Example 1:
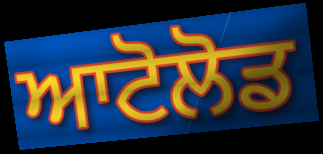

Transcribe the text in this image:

ਆਟੋਲੋਡ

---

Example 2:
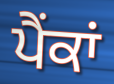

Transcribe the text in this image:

ਪੈਂਕਾਂ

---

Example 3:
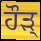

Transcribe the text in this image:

ਹੌੜ੍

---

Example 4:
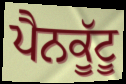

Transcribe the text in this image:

ਪੈਨਕੂੱਟੂ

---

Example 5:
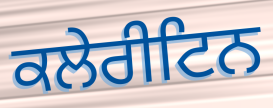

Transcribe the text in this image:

ਕਲੇਰੀਟਿਨ